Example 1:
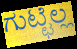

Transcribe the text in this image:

ಗುಟ್ಟೆಲ್ಲ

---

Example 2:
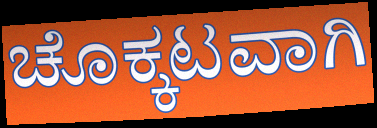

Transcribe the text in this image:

ಚೊಕ್ಕಟವಾಗಿ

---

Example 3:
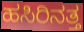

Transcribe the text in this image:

ಹಸಿರಿನತ್ತ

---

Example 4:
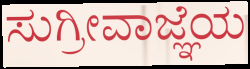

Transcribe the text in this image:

ಸುಗ್ರೀವಾಜ್ಞೆಯ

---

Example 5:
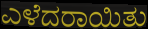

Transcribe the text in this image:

ಎಳೆದರಾಯಿತು